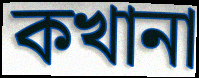
কখানা